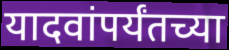
यादवांपर्यंतच्या